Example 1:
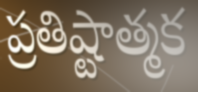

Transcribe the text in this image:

ప్రతిష్టాత్మక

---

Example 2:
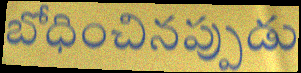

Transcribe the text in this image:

బోధించినప్పుడు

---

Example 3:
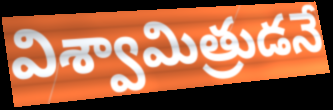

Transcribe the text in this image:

విశ్వామిత్రుడనే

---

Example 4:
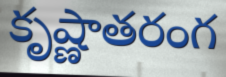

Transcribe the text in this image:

కృష్ణాతరంగ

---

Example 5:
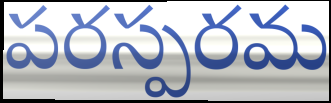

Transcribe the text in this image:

పరస్పరమ